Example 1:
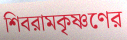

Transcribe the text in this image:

শিবরামকৃষ্ণণের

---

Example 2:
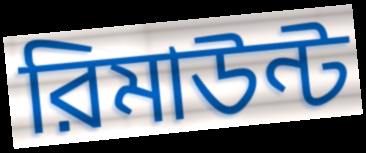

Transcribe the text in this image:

রিমাউন্ট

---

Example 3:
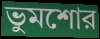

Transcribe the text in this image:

ভুমশোর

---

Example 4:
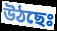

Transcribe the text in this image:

উঠছেঃ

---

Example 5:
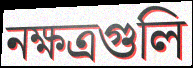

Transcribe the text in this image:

নক্ষত্রগুলি